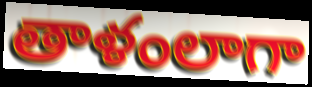
తాళంలాగా